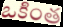
ఒకింత